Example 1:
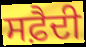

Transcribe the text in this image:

ਸਫ਼ੈਦੀ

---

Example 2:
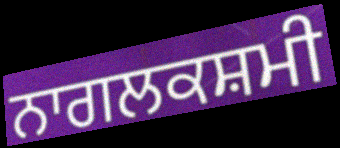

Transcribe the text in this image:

ਨਾਗਲਕਸ਼ਮੀ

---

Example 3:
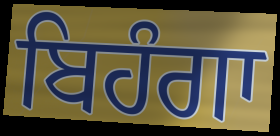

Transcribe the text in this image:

ਬਿਹੰਗਾ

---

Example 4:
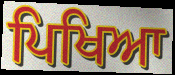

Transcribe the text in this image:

ਪਿਖਿਆ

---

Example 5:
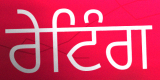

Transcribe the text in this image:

ਰੇਟਿੰਗ